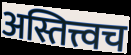
अस्तित्त्वच